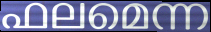
ഫലമെന്ന